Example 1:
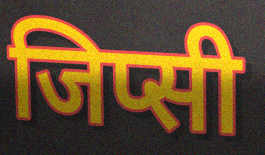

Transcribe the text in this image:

जिप्सी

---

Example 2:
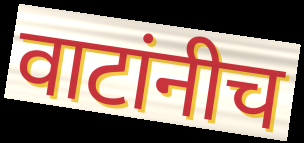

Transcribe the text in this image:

वाटांनीच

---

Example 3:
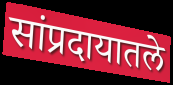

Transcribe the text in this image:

सांप्रदायातले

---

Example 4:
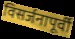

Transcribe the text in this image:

विसर्जनापूर्वी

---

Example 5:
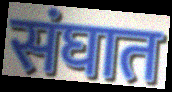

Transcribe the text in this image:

संघात